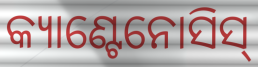
କ୍ୟାଣ୍ଟେନୋସିସ୍